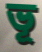
ভূ